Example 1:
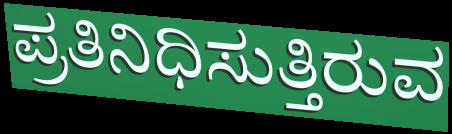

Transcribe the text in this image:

ಪ್ರತಿನಿಧಿಸುತ್ತಿರುವ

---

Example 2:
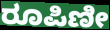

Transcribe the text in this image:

ರೂಪಿಣೀ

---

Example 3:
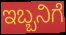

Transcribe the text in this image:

ಇಬ್ಬನಿಗೆ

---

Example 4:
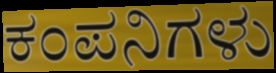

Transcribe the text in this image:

ಕಂಪನಿಗಳು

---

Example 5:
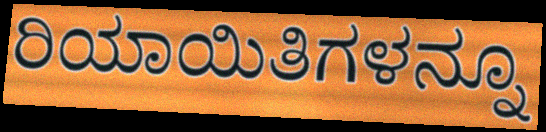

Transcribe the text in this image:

ರಿಯಾಯಿತಿಗಳನ್ನೂ